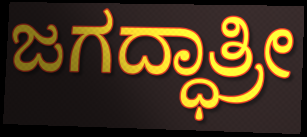
ಜಗದ್ಧಾತ್ರೀ